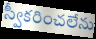
స్వీకరించలేను